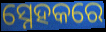
ସ୍ନେହକରେ